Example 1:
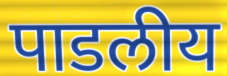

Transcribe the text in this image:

पाडलीय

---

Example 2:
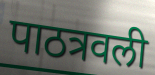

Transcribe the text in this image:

पाठत्रवली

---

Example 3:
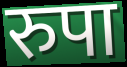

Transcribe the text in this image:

रुपा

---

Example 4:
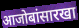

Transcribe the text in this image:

आजोबांसारखा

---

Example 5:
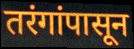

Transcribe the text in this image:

तरंगांपासून